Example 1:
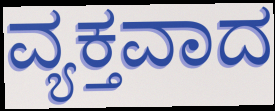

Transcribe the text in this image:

ವ್ಯಕ್ತವಾದ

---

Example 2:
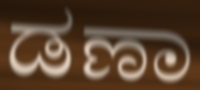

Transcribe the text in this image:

ಡಣಾ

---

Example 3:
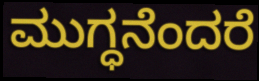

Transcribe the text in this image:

ಮುಗ್ಧನೆಂದರೆ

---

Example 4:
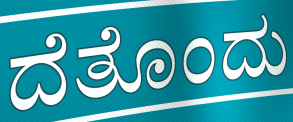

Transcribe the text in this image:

ದೆತೊಂದು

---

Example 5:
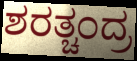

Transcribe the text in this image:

ಶರತ್ಚಂದ್ರ